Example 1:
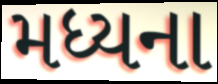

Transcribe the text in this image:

મધ્યના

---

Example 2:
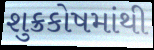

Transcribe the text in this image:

શુક્રકોષમાંથી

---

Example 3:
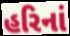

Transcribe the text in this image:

હરિનાં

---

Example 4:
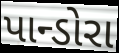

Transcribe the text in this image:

પાન્ડોરા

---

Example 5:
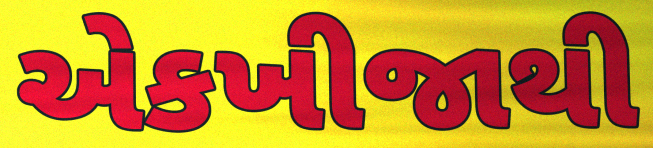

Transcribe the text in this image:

એકખીજાથી